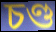
চণ্ড